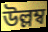
উল্লম্ব